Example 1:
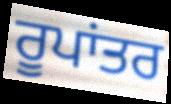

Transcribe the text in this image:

ਰੂਪਾਂਤਰ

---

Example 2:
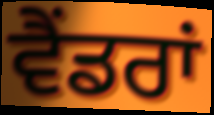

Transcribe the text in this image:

ਵੈਂਡਰਾਂ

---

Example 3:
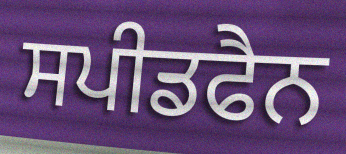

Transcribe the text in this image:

ਸਪੀਡਫੈਨ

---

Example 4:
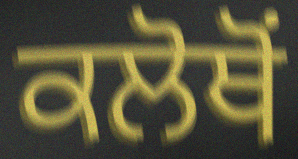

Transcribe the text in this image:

ਕਲੋਥੋਂ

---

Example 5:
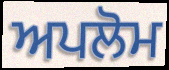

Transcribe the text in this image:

ਅਪਲੋਮ